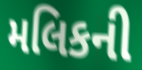
મલિકની